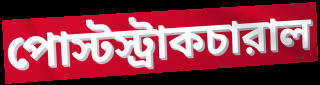
পোস্টস্ট্রাকচারাল